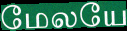
மேலயே